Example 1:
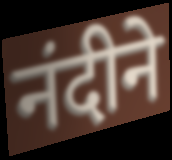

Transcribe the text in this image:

नंदीने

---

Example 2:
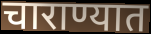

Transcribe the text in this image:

चाराण्यात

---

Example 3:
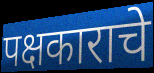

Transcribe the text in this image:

पक्षकाराचे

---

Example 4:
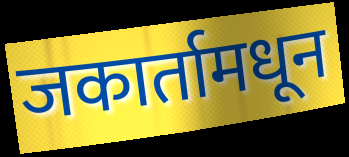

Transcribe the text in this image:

जकार्तामधून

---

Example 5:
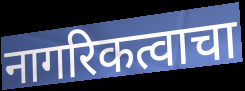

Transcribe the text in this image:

नागरिकत्वाचा